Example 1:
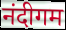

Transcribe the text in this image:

नंदीगम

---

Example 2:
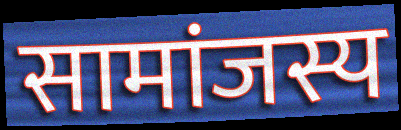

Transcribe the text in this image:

सामांजस्य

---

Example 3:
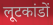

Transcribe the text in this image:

लूटकांडों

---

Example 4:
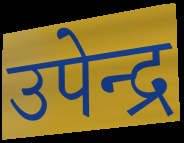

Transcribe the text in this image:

उपेन्द्र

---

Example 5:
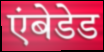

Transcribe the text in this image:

एंबेडेड